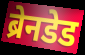
ब्रेनडेड